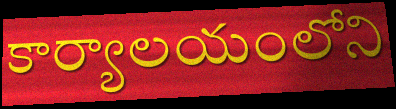
కార్యాలయంలోని